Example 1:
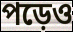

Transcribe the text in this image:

পড়েও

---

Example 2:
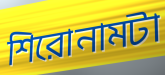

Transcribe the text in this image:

শিরোনামটা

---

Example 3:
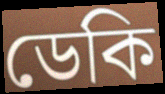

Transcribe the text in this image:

ডেকি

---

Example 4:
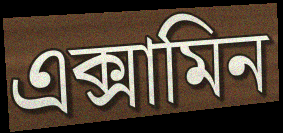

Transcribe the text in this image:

এক্সামিন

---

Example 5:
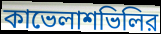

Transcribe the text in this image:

কাভেলাশভিলির